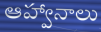
ఆహ్వానాలు